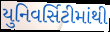
યુનિવર્સિટીમાંથી